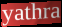
yathra